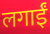
लगाईं